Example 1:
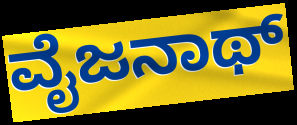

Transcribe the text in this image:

ವೈಜನಾಥ್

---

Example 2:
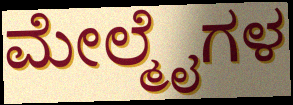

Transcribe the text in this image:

ಮೇಲ್ಮೈಗಳ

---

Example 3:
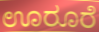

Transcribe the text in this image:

ಊರೂರೆ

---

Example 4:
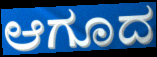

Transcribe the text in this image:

ಆಗೂದ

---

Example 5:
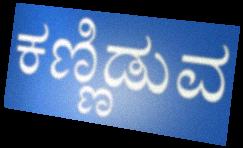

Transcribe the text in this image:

ಕಣ್ಣಿಡುವ